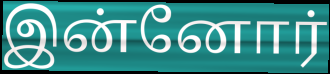
இன்னோர்